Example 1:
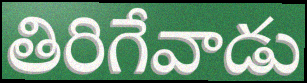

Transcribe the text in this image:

తిరిగేవాడు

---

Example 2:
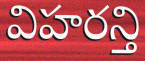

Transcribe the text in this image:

విహరన్తి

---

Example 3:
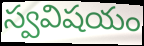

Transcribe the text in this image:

స్వవిషయం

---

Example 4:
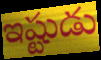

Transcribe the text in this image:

ఇష్టుడు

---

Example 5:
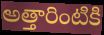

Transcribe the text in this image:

అత్తారింటికి